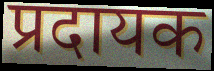
प्रदायक